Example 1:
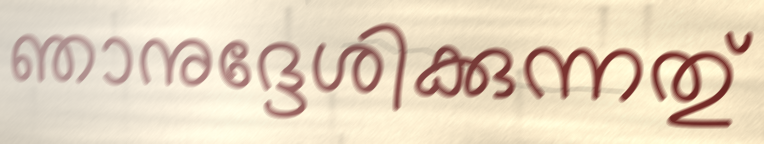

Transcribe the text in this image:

ഞാനുദ്ദേശിക്കുന്നതു്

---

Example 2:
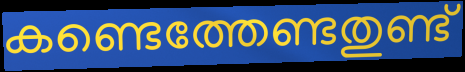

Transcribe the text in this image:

കണ്ടെത്തേണ്ടതുണ്ട്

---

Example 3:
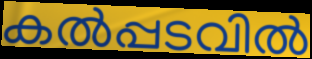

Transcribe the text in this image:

കൽപ്പടവിൽ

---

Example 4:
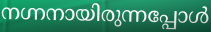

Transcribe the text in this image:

നഗ്നനായിരുന്നപ്പോൾ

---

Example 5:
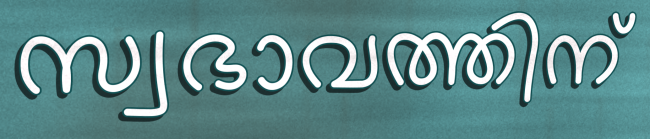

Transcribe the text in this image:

സ്വഭാവത്തിന്